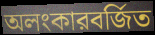
অলংকারবর্জিত